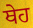
ਥੇਹ